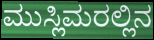
ಮುಸ್ಲಿಮರಲ್ಲಿನ